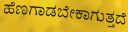
ಹೆಣಗಾಡಬೇಕಾಗುತ್ತದೆ